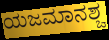
ಯಜಮಾನಶ್ಚ